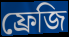
ফ্রেজি